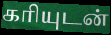
கரியுடன்